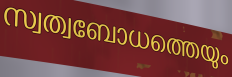
സ്വത്വബോധത്തെയും